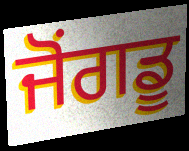
ਜੋਂਗਡੂ